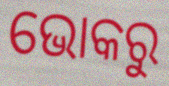
ଭୋକରୁ